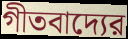
গীতবাদ্যের